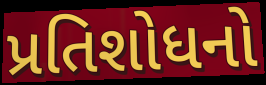
પ્રતિશોધનો